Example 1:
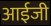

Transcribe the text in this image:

आईजी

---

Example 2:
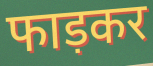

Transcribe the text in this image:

फाड़कर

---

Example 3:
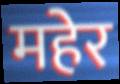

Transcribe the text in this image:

महेर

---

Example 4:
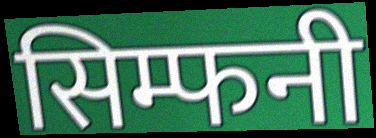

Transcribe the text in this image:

सिम्फनी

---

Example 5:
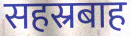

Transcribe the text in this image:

सहस्रबाह